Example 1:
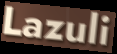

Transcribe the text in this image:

Lazuli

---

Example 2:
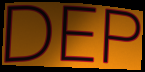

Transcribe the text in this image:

DEP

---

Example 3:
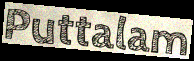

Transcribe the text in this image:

Puttalam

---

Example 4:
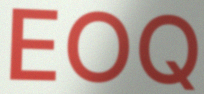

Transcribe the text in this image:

EOQ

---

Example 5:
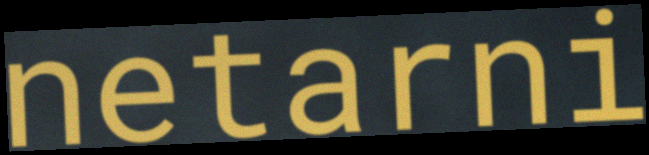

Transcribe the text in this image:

netarni